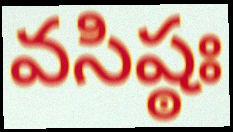
వసిష్ఠః